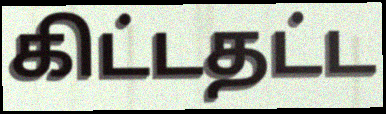
கிட்டதட்ட